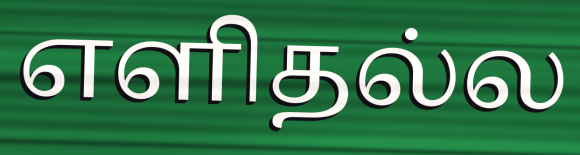
எளிதல்ல